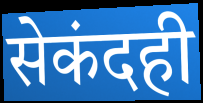
सेकंदही